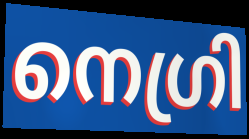
നെഗ്രി